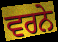
ਵਰਨੇ